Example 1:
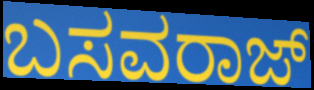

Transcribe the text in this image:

ಬಸವರಾಜ್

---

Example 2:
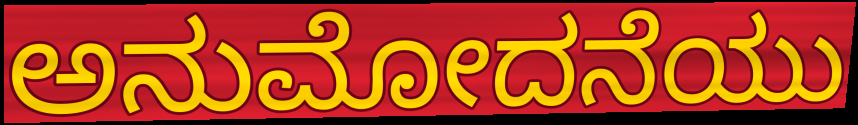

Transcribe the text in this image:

ಅನುಮೋದನೆಯು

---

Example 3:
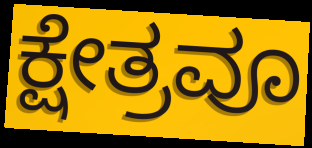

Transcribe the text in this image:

ಕ್ಷೇತ್ರವೂ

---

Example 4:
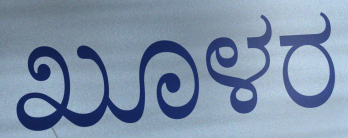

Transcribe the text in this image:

ಖೂಳರ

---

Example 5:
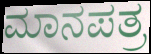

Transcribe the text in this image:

ಮಾನಪತ್ರ